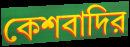
কেশবাদির